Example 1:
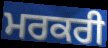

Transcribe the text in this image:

ਮਰਕਰੀ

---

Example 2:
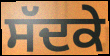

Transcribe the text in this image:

ਸੱਦਕੇ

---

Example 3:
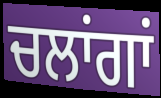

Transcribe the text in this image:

ਚਲਾਂਗਾਂ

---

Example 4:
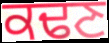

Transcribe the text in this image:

ਕਢਣ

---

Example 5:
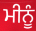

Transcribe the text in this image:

ਮੀਨੂੰ